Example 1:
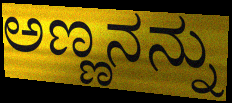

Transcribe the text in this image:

ಅಣ್ಣನನ್ನು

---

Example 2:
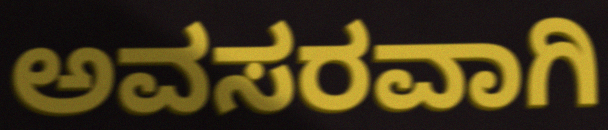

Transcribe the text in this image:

ಅವಸರವಾಗಿ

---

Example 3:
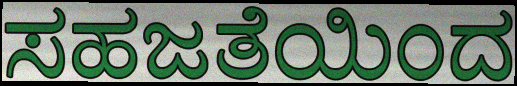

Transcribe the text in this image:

ಸಹಜತೆಯಿಂದ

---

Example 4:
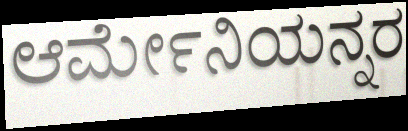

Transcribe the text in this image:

ಆರ್ಮೇನಿಯನ್ನರ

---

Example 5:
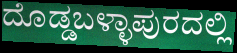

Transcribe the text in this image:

ದೊಡ್ಡಬಳ್ಳಾಪುರದಲ್ಲಿ